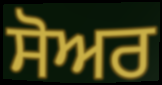
ਸੋਅਰ